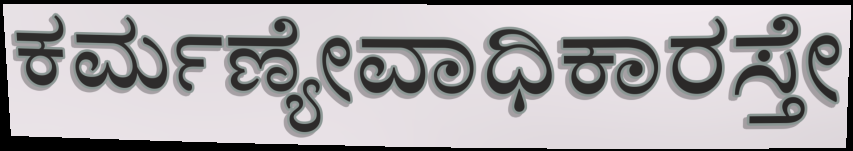
ಕರ್ಮಣ್ಯೇವಾಧಿಕಾರಸ್ತೇ